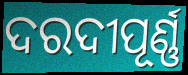
ଦରଦୀପୂର୍ଣ୍ଣ